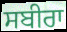
ਸਬੀਰਾ